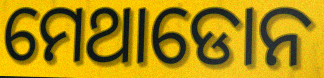
ମେଥାଡୋନ